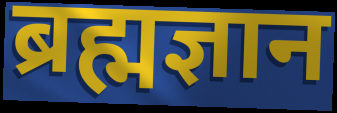
ब्रह्मज्ञान